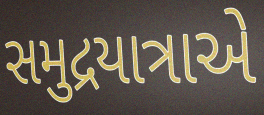
સમુદ્રયાત્રાએ